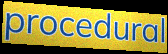
procedural